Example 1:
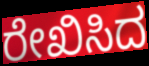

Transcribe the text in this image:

ರೇಖಿಸಿದ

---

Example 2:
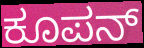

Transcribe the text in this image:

ಕೂಪನ್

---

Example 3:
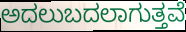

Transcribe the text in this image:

ಅದಲುಬದಲಾಗುತ್ತವೆ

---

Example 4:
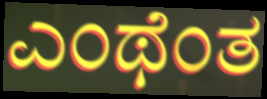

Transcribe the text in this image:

ಎಂಥೆಂತ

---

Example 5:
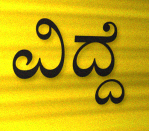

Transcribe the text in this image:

ವಿದ್ದೆ